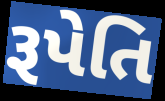
રૂપેતિ